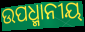
ଉପଧ୍ମାନୀୟ